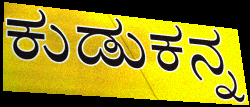
ಕುಡುಕನ್ನ